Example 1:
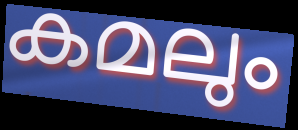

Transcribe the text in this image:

കമലും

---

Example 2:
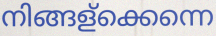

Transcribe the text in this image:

നിങ്ങള്ക്കെന്നെ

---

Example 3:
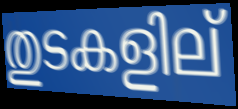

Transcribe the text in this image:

തുടകളില്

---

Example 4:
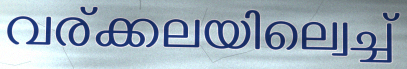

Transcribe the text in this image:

വര്ക്കലയില്വെച്ച്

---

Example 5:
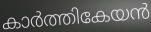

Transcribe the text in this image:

കാർത്തികേയൻ